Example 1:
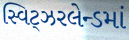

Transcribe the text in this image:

સ્વિટ્ઝરલેન્ડમાં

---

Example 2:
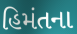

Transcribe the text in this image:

હિમંતના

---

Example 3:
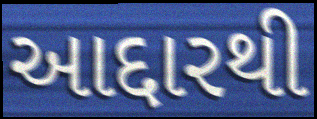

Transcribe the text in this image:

આદ્દારથી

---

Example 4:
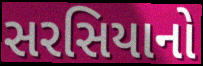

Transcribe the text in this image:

સરસિયાનો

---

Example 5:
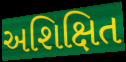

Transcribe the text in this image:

અશિક્ષિત